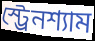
স্ট্রেনশ্যাম